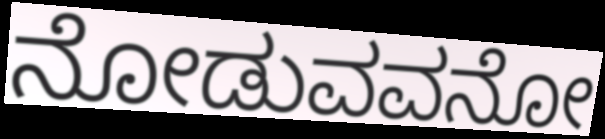
ನೋಡುವವನೋ